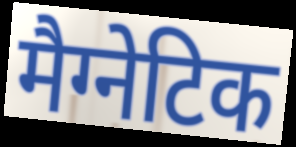
मैग्नेटिक